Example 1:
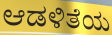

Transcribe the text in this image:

ಆಡಳಿತೆಯ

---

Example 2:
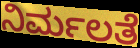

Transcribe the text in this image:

ನಿರ್ಮಲತೆ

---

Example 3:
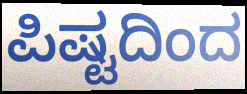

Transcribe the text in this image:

ಪಿಷ್ಟದಿಂದ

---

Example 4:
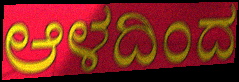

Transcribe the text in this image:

ಆಳದಿಂದ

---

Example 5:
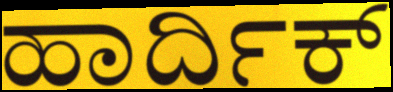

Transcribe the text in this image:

ಹಾರ್ದಿಕ್